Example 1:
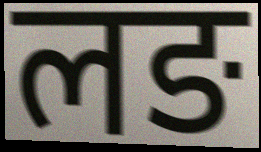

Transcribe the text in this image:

लङ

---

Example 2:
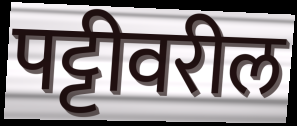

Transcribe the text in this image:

पट्टीवरील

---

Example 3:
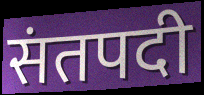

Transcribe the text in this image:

संतपदी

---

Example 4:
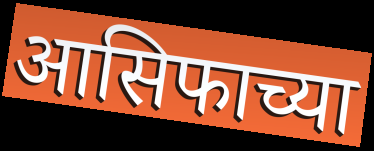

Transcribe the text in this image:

आसिफाच्या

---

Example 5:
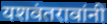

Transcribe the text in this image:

यशवंतरावांनी